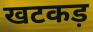
खटकड़